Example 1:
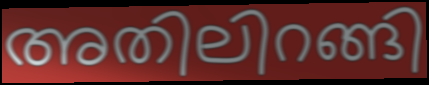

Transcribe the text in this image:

അതിലിറങ്ങി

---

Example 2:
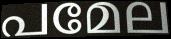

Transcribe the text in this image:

പമേല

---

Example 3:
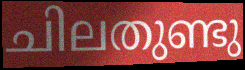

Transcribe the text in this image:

ചിലതുണ്ടു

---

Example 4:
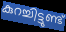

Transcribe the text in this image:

കുറച്ചിട്ടുണ്ട്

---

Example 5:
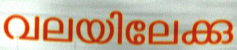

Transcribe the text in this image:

വലയിലേക്കു